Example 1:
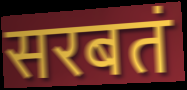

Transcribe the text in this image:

सरबतं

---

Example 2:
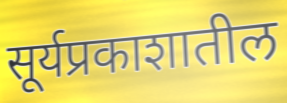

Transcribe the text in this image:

सूर्यप्रकाशातील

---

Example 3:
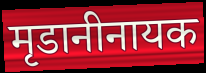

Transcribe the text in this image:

मृडानीनायक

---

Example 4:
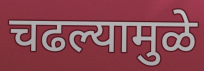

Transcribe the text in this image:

चढल्यामुळे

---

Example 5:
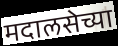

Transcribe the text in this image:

मदालसेच्या